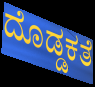
ದೊಡ್ಡಕತೆ